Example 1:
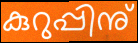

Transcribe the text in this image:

കുറുപ്പിനു്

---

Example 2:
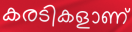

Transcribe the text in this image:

കരടികളാണ്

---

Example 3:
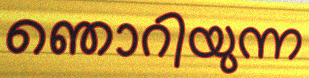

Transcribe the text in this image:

ഞൊറിയുന്ന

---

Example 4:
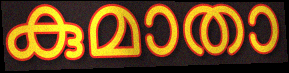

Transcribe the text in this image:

കുമാതാ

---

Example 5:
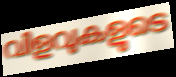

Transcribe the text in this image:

വിളവുകളുടെ